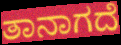
ತಾನಾಗದೆ